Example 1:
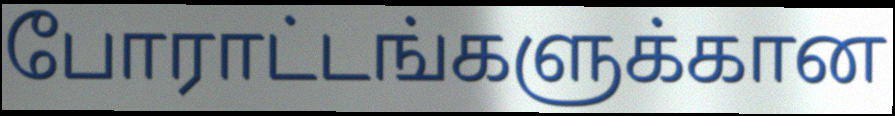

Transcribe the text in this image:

போராட்டங்களுக்கான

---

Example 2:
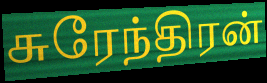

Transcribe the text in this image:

சுரேந்திரன்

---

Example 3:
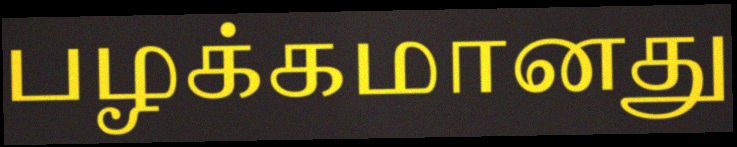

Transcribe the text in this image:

பழக்கமானது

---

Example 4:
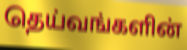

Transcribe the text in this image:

தெய்வங்களின்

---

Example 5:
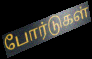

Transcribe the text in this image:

போர்டுகள்